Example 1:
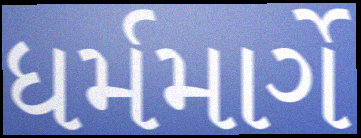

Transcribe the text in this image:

ધર્મમાર્ગે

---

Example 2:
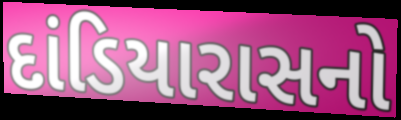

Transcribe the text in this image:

દાંડિયારાસનો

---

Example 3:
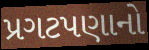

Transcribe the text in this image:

પ્રગટપણાનો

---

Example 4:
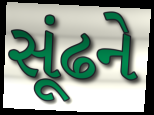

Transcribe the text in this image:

સૂંઢને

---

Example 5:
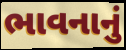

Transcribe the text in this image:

ભાવનાનું